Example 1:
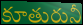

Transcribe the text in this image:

కూతురునీ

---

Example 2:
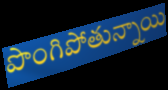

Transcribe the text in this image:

పొంగిపోతున్నాయి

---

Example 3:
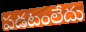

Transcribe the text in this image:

పడటంలేదు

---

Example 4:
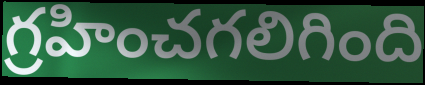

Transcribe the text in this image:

గ్రహించగలిగింది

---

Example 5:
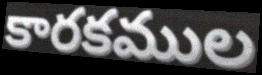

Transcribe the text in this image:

కారకముల